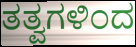
ತತ್ವಗಳಿಂದ